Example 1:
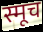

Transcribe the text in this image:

स्मूच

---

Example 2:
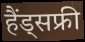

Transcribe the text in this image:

हैंड्सफ्री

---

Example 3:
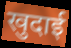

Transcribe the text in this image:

खुदाई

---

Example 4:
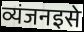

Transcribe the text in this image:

व्यंजनइसे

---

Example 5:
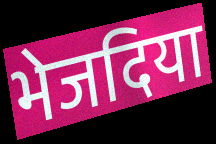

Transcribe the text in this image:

भेजदिया